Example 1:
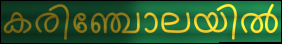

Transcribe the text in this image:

കരിഞ്ചോലയിൽ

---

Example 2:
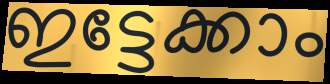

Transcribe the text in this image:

ഇട്ടേക്കാം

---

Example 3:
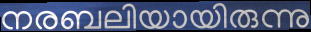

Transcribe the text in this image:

നരബലിയായിരുന്നു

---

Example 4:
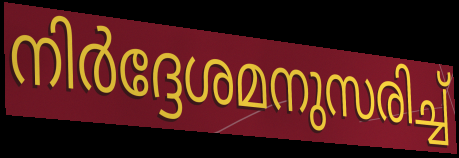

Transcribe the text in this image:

നിർദ്ദേശമനുസരിച്ച്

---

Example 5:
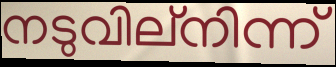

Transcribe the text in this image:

നടുവില്നിന്ന്